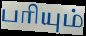
பரியும்